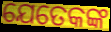
ଯେତେକଙ୍କ